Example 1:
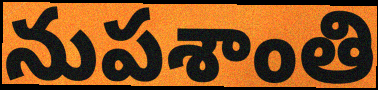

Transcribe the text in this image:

నుపశాంతి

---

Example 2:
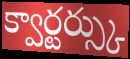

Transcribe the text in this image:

క్వార్టర్స్కు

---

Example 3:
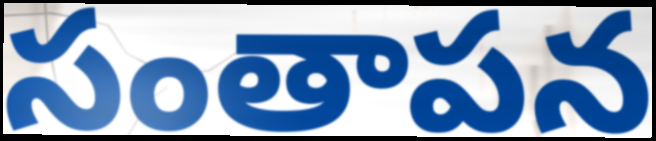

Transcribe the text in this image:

సంతాపన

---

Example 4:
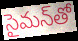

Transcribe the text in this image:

సైమన్‌తో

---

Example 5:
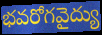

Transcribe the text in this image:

భవరోగవైద్యు